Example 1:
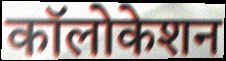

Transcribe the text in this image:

कॉलोकेशन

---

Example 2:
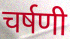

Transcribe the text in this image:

चर्षणी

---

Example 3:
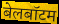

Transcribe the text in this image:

बेलबॉटम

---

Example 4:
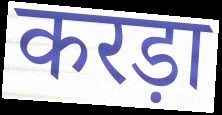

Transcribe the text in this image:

करड़ा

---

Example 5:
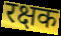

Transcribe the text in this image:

रक्षक